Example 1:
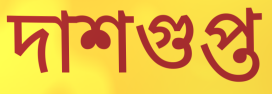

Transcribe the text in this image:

দাশগুপ্ত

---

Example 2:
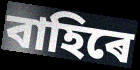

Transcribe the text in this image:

বাহিৰে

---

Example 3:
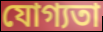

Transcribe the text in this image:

যোগ্যতা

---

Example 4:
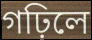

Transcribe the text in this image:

গঢ়িলে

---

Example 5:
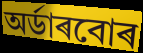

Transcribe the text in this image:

অৰ্ডাৰবোৰ